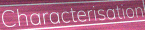
Characterisation